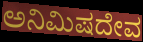
ಅನಿಮಿಷದೇವ